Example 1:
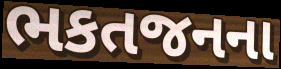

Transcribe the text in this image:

ભકતજનના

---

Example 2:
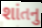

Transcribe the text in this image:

શાંતનુ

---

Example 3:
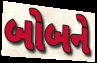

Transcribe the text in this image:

બોબને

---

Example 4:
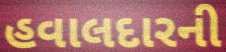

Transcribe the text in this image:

હવાલદારની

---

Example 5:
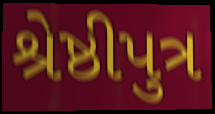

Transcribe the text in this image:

શ્રેષ્ઠીપુત્ર